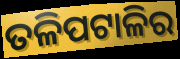
ତଳିପଟାଳିର